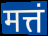
मत्तं